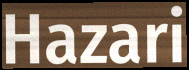
Hazari